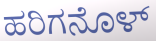
ಹರಿಗನೊಳ್